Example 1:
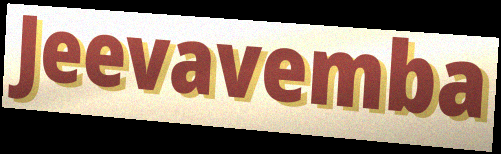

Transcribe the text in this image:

Jeevavemba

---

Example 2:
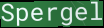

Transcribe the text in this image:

Spergel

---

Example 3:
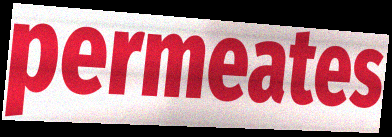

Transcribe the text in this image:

permeates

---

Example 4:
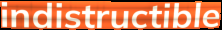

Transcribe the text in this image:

indistructible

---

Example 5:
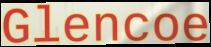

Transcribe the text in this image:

Glencoe